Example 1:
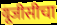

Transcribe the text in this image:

यूजीसीचा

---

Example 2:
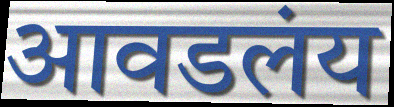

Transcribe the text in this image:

आवडलंय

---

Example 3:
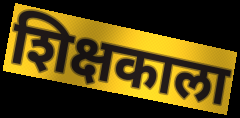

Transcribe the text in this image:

शिक्षकाला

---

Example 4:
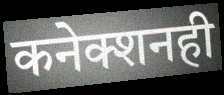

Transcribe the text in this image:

कनेक्शनही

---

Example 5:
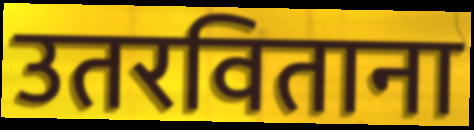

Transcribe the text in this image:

उतरविताना